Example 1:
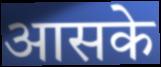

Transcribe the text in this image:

आसके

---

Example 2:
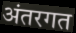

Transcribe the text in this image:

अंतरगत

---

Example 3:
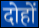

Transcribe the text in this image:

दोहों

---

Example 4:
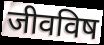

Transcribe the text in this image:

जीवविष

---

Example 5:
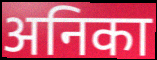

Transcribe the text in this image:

अनिका